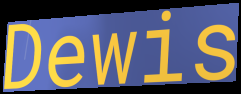
Dewis